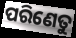
ପରିଣେତୁ